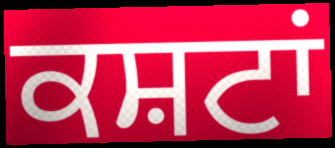
ਕਸ਼ਟਾਂ